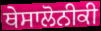
ਥੇਸਾਲੋਨੀਕੀ